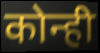
कोन्ही